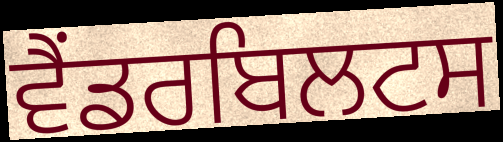
ਵੈਂਡਰਬਿਲਟਸ